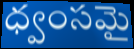
ధ్వంసమై